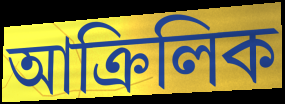
আক্ৰিলিক